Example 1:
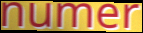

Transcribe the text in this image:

numer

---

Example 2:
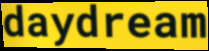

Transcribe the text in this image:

daydream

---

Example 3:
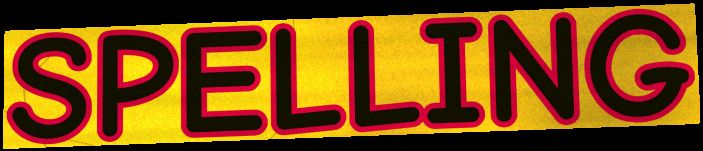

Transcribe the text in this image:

SPELLING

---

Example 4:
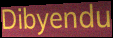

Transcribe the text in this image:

Dibyendu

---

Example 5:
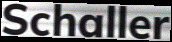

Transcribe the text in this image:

Schaller